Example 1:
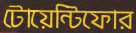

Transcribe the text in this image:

টোয়েন্টিফোর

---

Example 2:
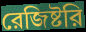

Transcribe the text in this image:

রেজিষ্টরি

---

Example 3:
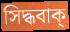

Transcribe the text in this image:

সিদ্ধবাক্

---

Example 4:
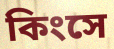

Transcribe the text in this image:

কিংসে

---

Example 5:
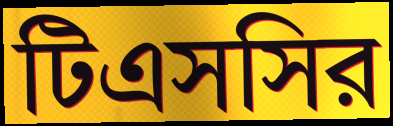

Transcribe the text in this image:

টিএসসির